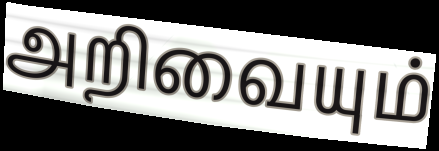
அறிவையும்